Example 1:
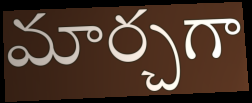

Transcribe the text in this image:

మార్చగా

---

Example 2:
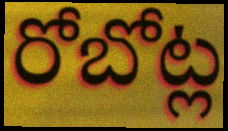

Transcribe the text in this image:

రోబోట్ల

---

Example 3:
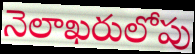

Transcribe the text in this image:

నెలాఖరులోపు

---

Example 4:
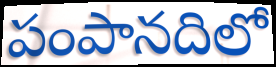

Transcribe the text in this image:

పంపానదిలో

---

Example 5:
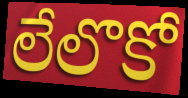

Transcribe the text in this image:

లేలొకో